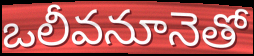
ఒలీవనూనెతో